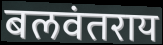
बलवंतराय